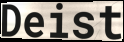
Deist